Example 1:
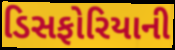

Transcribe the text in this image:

ડિસફોરિયાની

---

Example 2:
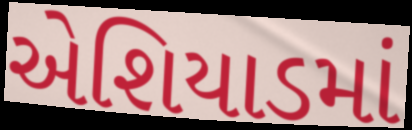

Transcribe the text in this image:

એશિયાડમાં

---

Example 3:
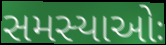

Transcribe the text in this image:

સમસ્યાઓઃ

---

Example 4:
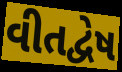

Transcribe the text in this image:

વીતદ્વેષ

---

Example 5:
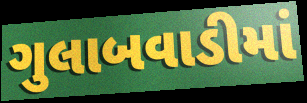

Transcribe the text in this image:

ગુલાબવાડીમાં